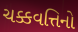
ચક્કવત્તિનો